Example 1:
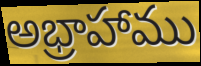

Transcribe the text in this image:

అభ్రాహాము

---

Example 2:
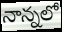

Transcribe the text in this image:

నాన్నలో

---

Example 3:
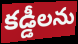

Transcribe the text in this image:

కడ్డీలను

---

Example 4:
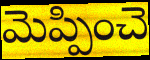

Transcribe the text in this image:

మెప్పించె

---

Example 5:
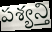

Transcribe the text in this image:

పశ్యన్తి